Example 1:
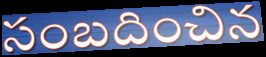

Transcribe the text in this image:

సంబదించిన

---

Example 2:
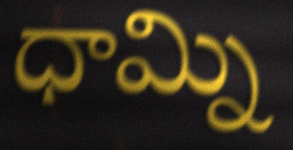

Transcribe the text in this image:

ధామ్ని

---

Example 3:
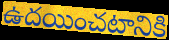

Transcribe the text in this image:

ఉదయించటానికి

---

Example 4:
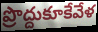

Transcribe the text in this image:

ప్రొద్దుకూకేవేళ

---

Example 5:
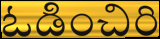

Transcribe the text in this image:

ఓడించిరి